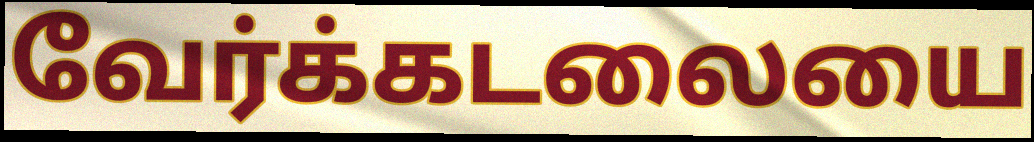
வேர்க்கடலையை